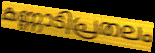
കണ്ണാടിപ്രതലം